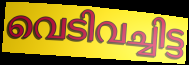
വെടിവച്ചിട്ട